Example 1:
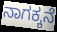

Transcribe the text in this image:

ನಾಗಕ್ಕನೆ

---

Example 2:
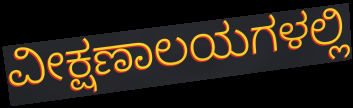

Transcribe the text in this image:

ವೀಕ್ಷಣಾಲಯಗಳಲ್ಲಿ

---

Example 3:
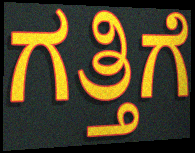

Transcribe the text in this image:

ಗತ್ತಿಗೆ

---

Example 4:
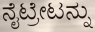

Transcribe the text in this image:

ನೈಟ್ರೇಟನ್ನು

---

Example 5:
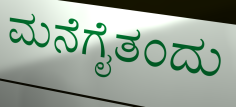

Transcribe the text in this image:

ಮನೆಗೈತಂದು